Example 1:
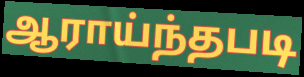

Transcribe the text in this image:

ஆராய்ந்தபடி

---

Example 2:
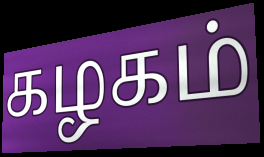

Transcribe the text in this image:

கழகம்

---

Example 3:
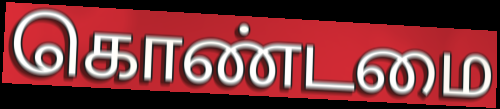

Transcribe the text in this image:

கொண்டமை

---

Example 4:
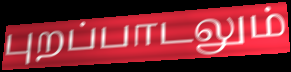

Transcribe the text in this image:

புறப்பாடலும்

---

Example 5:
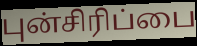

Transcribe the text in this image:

புன்சிரிப்பை